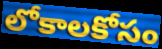
లోకాలకోసం